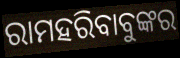
ରାମହରିବାବୁଙ୍କର